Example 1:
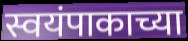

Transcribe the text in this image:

स्वयंपाकाच्या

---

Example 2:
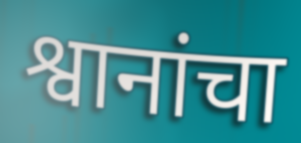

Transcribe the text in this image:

श्वानांचा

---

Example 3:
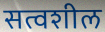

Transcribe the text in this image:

सत्वशील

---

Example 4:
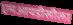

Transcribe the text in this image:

एमआयडीसीला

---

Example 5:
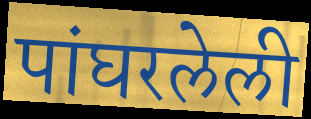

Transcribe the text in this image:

पांघरलेली